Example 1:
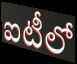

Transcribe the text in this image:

ఐటీలో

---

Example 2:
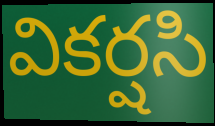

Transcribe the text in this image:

వికర్షసి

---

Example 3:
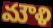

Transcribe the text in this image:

మౌళి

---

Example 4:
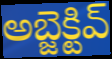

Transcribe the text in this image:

అబ్జెక్టివ్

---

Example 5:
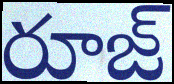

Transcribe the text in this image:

రూజ్